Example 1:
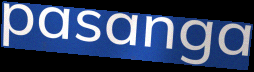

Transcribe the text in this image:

pasanga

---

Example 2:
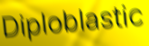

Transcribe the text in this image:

Diploblastic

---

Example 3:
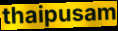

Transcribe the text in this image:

thaipusam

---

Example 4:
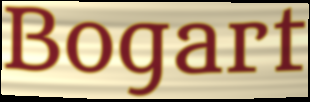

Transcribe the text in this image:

Bogart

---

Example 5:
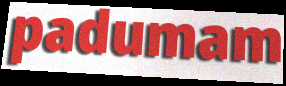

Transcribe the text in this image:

padumam